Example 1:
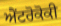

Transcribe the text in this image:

ਐਂਟਰੋਕੋਕੀ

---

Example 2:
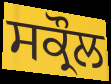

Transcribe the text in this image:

ਸਕ੍ਰੌਲ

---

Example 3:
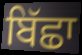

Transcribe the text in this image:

ਬਿੱਛਾ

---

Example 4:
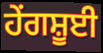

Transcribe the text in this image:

ਹੇਂਗਸ਼ੂਈ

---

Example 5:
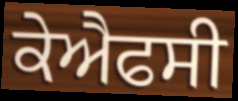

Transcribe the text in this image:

ਕੇਐਫਸੀ